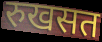
रुखसत